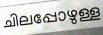
ചിലപ്പോഴുള്ള